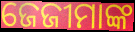
ଜେଜୀମାଙ୍କ